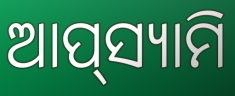
ଆପ୍‌ସ୍ୟାମି